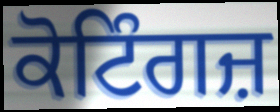
ਕੋਟਿੰਗਜ਼